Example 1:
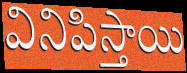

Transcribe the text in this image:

వినిపిస్తాయి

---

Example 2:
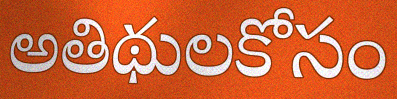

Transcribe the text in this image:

అతిథులకోసం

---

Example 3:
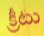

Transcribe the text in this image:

క్రీటు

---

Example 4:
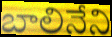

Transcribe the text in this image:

బాలినేని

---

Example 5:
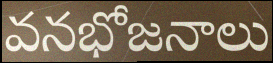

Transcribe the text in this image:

వనభోజనాలు